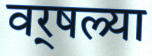
वर्षल्या